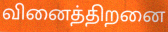
வினைத்திறனை